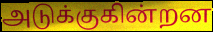
அடுக்குகின்றன